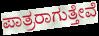
ಪಾತ್ರರಾಗುತ್ತೇವೆ